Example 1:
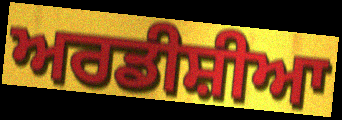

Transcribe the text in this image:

ਅਰਡੀਸ਼ੀਆ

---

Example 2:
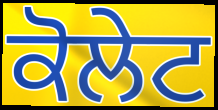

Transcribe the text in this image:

ਕੋਲੇਟ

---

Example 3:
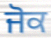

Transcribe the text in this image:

ਜੋਕ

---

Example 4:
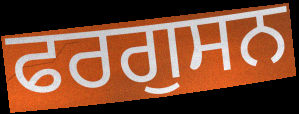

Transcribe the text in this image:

ਫਰਗੁਸਨ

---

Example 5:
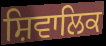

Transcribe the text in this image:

ਸ਼ਿਵਾਲਿਕ